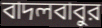
বাদলবাবুর